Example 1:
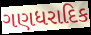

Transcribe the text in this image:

ગણધરાદિક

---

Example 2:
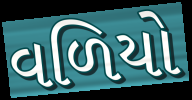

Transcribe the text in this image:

વળિયો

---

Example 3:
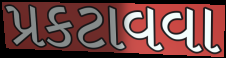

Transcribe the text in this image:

પ્રકટાવવા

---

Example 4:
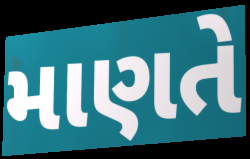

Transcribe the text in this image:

માણતે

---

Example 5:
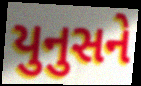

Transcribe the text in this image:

યુનુસને